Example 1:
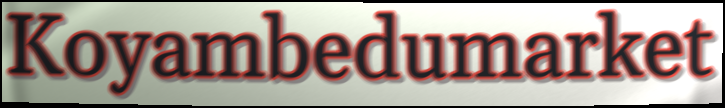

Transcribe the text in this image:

Koyambedumarket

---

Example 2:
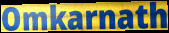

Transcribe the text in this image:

Omkarnath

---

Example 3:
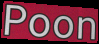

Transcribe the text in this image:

Poon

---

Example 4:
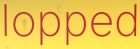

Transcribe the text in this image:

lopped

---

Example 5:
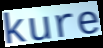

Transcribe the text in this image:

kure